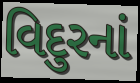
વિદુરનાં